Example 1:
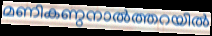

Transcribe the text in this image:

മണികണ്ഠനാൽത്തറയിൽ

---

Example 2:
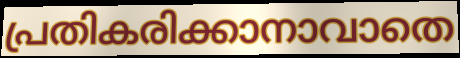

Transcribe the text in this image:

പ്രതികരിക്കാനാവാതെ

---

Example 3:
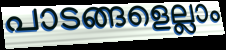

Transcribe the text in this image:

പാടങ്ങളെല്ലാം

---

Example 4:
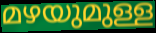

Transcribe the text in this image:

മഴയുമുള്ള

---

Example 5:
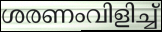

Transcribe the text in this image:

ശരണംവിളിച്ച്